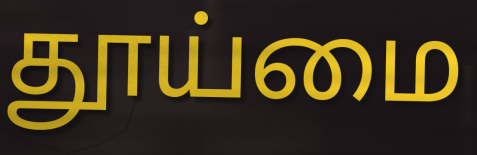
தூய்மை